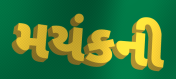
મયંકની